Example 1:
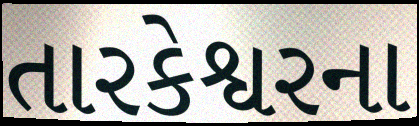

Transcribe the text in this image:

તારકેશ્વરના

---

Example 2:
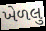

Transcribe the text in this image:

ખેળલુ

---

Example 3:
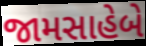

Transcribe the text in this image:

જામસાહેબે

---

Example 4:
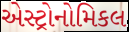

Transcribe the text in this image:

એસ્ટ્રોનોમિકલ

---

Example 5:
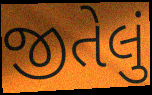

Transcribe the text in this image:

જીતેલું